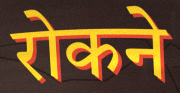
रोकने